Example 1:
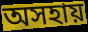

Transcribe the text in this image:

অসহায়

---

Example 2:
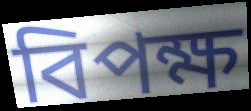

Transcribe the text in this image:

বিপক্ষ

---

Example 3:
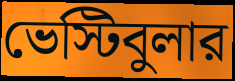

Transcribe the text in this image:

ভেস্টিবুলার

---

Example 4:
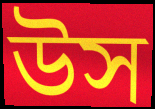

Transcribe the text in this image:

উস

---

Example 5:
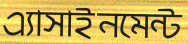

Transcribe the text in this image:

এ্যাসাইনমেন্ট